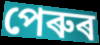
পেৰুৰ